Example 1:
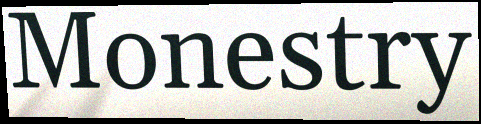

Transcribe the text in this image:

Monestry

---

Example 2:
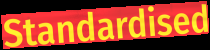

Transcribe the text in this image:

Standardised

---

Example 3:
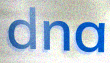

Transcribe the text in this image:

dna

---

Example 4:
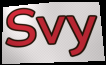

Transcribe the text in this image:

Svy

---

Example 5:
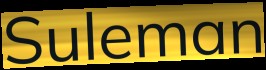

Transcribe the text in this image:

Suleman